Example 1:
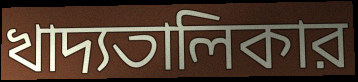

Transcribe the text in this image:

খাদ্যতালিকার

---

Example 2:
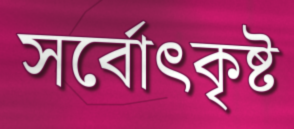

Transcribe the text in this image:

সর্বোৎকৃষ্ট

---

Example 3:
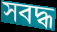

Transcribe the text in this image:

সবদ্ধ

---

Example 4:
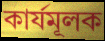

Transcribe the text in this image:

কার্যমূলক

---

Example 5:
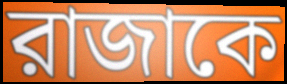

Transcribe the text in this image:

রাজাকে